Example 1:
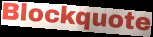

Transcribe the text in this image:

Blockquote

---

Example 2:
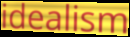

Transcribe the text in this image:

idealism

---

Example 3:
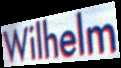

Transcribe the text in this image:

Wilhelm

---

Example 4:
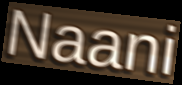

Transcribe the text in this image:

Naani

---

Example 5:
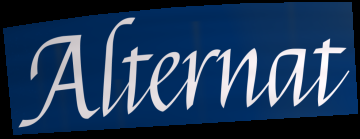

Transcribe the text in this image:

Alternat